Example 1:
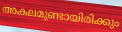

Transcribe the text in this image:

അകലമുണ്ടായിരിക്കും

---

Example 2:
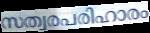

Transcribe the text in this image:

സത്വരപരിഹാരം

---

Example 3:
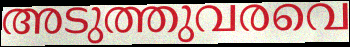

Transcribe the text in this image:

അടുത്തുവരവെ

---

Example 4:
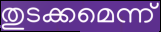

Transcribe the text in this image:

തുടക്കമെന്ന്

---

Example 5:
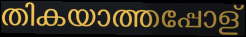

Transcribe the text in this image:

തികയാത്തപ്പോള്